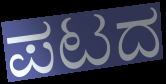
ಪಟದ